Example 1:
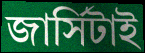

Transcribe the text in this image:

জার্সিটাই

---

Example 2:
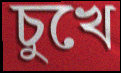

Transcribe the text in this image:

চুখে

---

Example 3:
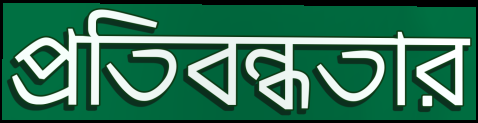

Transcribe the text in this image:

প্রতিবন্ধতার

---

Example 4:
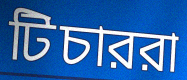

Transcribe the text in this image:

টিচাররা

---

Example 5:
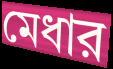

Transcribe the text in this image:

মেধার